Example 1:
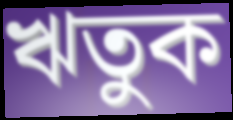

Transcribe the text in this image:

ঋতুক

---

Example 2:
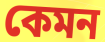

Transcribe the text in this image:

কেমন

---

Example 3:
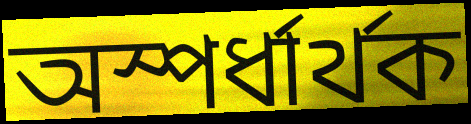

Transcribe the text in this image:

অস্পৰ্ধাৰ্থক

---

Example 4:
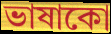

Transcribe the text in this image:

ভাষাকো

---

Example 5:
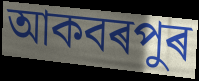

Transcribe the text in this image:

আকবৰপুৰ